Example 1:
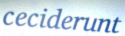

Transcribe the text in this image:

ceciderunt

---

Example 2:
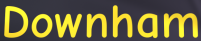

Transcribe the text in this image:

Downham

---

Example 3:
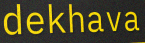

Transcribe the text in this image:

dekhava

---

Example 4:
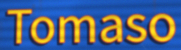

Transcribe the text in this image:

Tomaso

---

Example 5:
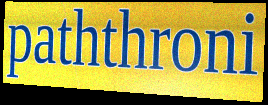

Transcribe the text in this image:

paththroni